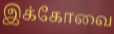
இக்கோவை